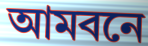
আমবনে